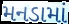
મનડામાં